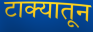
टाक्यातून